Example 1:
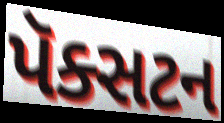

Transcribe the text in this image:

પૅક્સટન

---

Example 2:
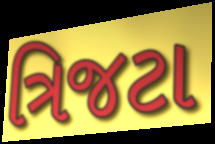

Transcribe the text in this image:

ત્રિજટા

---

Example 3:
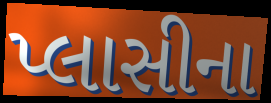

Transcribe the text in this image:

પ્લાસીના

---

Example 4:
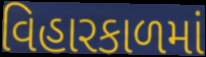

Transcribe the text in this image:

વિહારકાળમાં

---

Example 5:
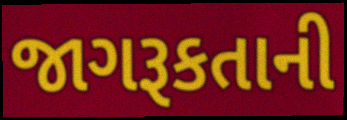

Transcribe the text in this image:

જાગરૂકતાની